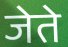
जेते